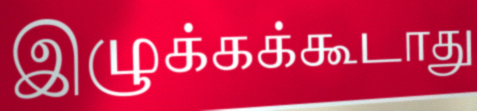
இழுக்கக்கூடாது